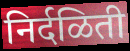
निर्दळिती